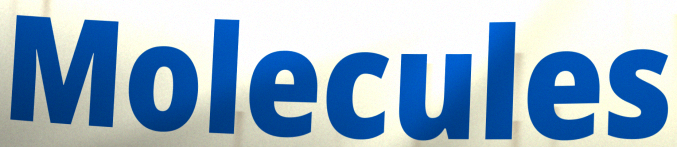
Molecules